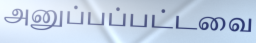
அனுப்பப்பட்டவை